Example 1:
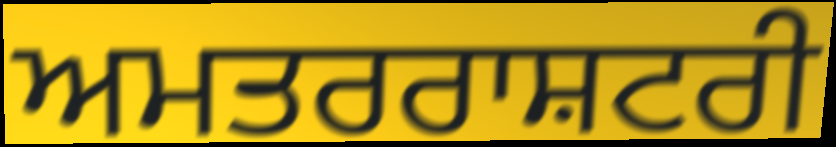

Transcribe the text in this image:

ਅਮਤਰਰਾਸ਼ਟਰੀ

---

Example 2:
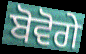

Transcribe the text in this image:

ਬੋਵੋਗੇ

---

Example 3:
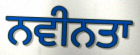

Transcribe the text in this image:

ਨਵੀਨਤਾ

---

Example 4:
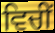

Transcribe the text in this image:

ਵਿਚੀਂ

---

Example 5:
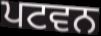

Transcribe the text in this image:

ਪਟਵਨ